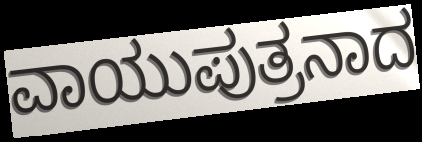
ವಾಯುಪುತ್ರನಾದ